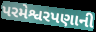
પરમેશ્વરપણાની